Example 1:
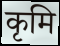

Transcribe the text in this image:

कृमि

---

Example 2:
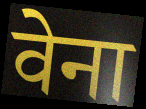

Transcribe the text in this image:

वेना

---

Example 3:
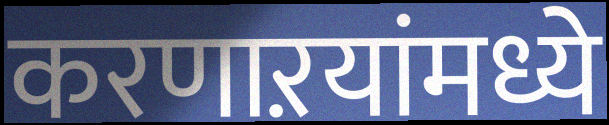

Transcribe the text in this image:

करणाऱयांमध्ये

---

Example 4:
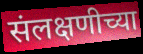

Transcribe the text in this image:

संलक्षणीच्या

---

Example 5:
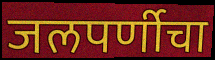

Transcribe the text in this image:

जलपर्णीचा